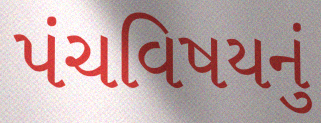
પંચવિષયનું